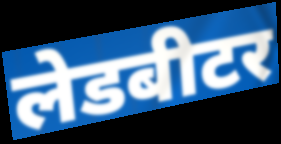
लेडबीटर